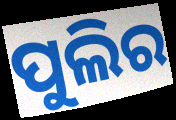
ପୁଲିର